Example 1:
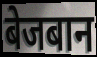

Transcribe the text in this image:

बेजबान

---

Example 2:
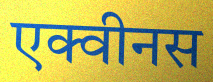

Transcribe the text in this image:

एक्वीनस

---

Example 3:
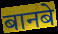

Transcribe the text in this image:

बानबे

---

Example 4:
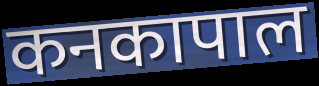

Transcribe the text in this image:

कनकापाल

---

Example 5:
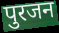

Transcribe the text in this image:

पुरजन